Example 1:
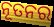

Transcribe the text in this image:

ନୂତନର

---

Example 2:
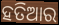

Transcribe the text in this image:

ହତିଆର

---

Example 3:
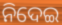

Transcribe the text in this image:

ନିଦେଇ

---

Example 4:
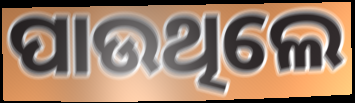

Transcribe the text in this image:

ପାଉଥିଲେ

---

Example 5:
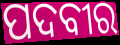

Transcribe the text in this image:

ପଦବୀର